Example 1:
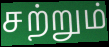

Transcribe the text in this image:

சற்றும்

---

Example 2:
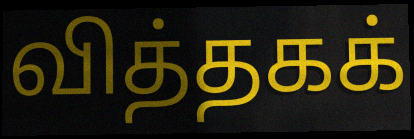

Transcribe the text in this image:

வித்தகக்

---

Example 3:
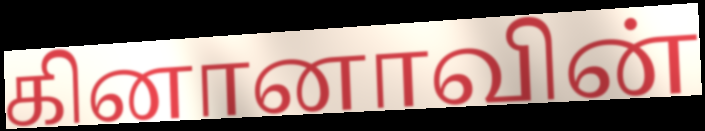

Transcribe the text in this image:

கினானாவின்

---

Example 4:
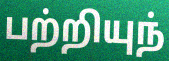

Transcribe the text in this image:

பற்றியுந்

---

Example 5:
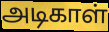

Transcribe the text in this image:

அடிகாள்